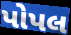
પોપલ